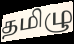
தமிழு